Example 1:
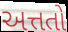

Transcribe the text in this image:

અત્તતો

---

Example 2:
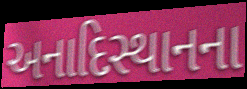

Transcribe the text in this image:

અનાદિસ્થાનના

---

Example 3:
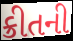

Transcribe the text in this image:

ક્રીતની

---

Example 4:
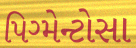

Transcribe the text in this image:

પિગ્મેન્ટોસા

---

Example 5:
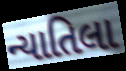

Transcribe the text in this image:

ન્યાતિલા